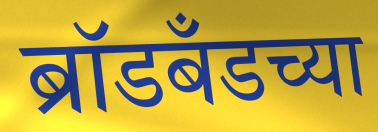
ब्रॉडबँडच्या